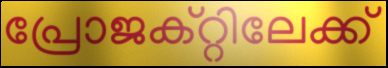
പ്രോജക്റ്റിലേക്ക്